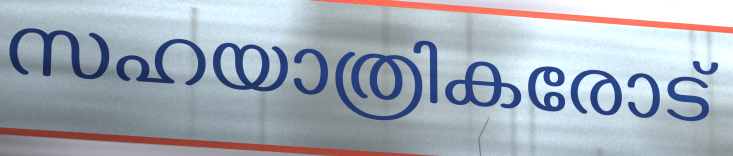
സഹയാത്രികരോട്